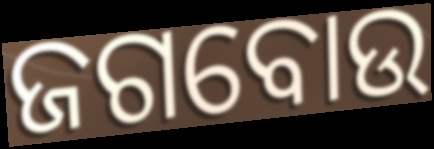
ଜଗବୋଉ